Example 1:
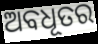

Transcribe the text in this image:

ଅବଧୂତର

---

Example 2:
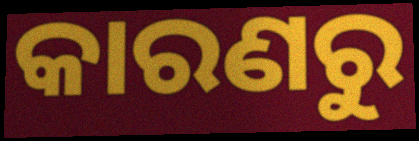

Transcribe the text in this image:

କାରଣରୁ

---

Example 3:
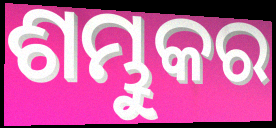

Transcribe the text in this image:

ଶମ୍ଭୁକର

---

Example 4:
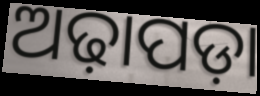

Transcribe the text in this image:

ଅଢ଼ାପଡ଼ା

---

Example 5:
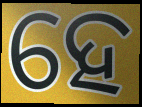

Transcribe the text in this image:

ହେ